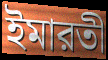
ইমারতী